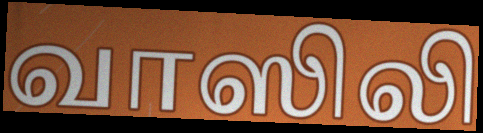
வாஸிலி